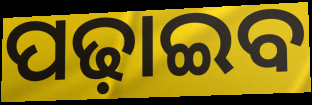
ପଢ଼ାଇବ